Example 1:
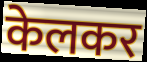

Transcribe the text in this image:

केलकर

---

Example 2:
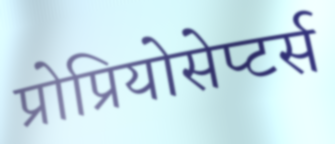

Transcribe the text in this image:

प्रोप्रियोसेप्टर्स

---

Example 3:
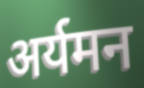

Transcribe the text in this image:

अर्यमन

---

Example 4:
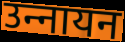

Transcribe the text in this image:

उन्नायन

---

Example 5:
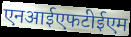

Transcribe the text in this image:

एनआईएफटीईएम